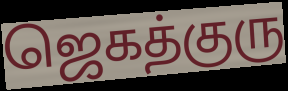
ஜெகத்குரு